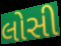
લોસી